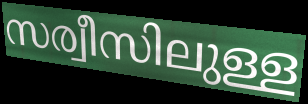
സര്വീസിലുള്ള